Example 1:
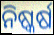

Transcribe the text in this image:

ନିଷ୍କର୍ଷ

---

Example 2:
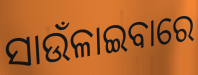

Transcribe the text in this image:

ସାଉଁଳାଇବାରେ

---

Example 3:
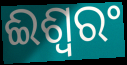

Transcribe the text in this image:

ଈଶ୍ୱରଂ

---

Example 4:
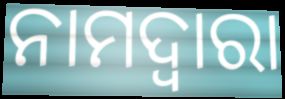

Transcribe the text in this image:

ନାମଦ୍ଵାରା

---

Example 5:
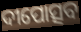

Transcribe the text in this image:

ଦୀପୋତ୍ସବ